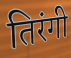
तिरंगी